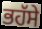
ਭਹੱਸੇ